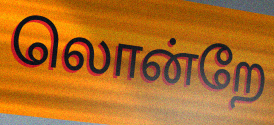
லொன்றே